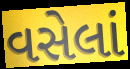
વસેલાં